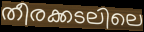
തീരക്കടലിലെ